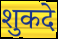
शुकदे